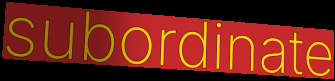
subordinate